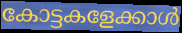
കോട്ടകളേക്കാൾ